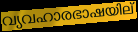
വ്യവഹാരഭാഷയില്